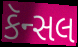
કૅન્સલ